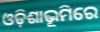
ଓଡ଼ିଶାଭୂମିରେ